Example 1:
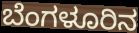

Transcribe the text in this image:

ಬೆಂಗಳೂರಿನ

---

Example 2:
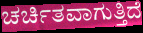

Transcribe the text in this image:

ಚರ್ಚಿತವಾಗುತ್ತಿದೆ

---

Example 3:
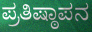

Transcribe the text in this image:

ಪ್ರತಿಷ್ಠಾಪನ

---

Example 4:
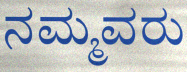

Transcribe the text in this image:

ನಮ್ಮವರು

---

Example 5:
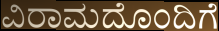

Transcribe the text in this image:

ವಿರಾಮದೊಂದಿಗೆ